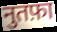
नुतफ़ा